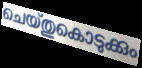
ചെയ്തുകൊടുക്കും